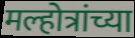
मल्होत्रांच्या